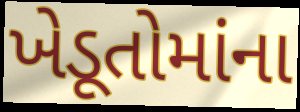
ખેડૂતોમાંના